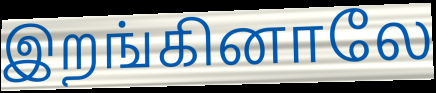
இறங்கினாலே